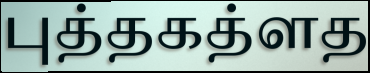
புத்தகத்ளத